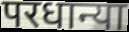
परधान्या